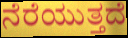
ನೆರೆಯುತ್ತದೆ